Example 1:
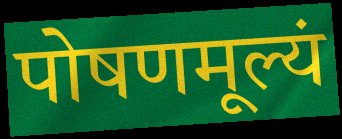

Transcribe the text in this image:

पोषणमूल्यं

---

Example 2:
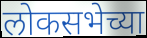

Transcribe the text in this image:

लोकसभेच्या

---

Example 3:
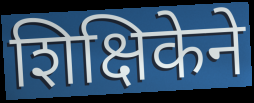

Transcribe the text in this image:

शिक्षिकेने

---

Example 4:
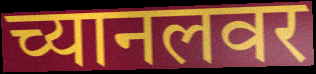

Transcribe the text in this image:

च्यानलवर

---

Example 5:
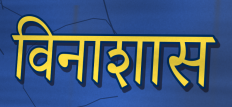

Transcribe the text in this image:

विनाशास